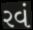
રવં